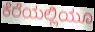
ಕೆರೆಯಲ್ಲಿಯೂ